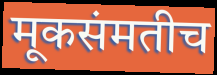
मूकसंमतीच